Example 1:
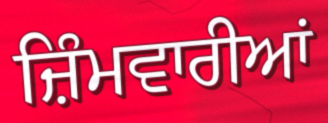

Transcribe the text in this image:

ਜ਼ਿੰਮਵਾਰੀਆਂ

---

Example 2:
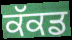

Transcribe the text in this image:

ਕੱਕਡ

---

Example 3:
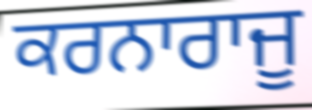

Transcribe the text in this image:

ਕਰਨਾਰਾਜੂ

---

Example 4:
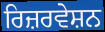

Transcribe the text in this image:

ਰਿਜ਼ਰਵੇਸ਼ਨ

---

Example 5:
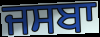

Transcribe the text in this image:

ਜਸਬਾ